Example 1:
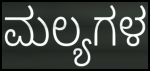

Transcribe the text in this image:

ಮಲ್ಯಗಳ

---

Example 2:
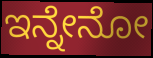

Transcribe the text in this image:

ಇನ್ನೇನೋ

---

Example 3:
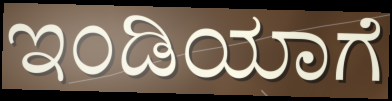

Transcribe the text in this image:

ಇಂಡಿಯಾಗೆ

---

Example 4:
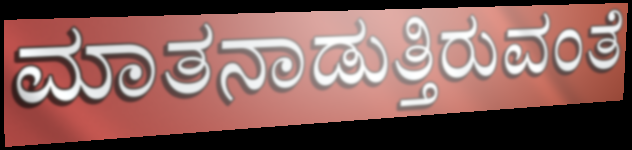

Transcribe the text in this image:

ಮಾತನಾಡುತ್ತಿರುವಂತೆ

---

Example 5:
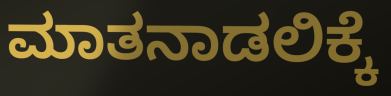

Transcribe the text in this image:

ಮಾತನಾಡಲಿಕ್ಕೆ